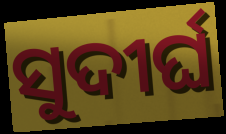
ସୁଦୀର୍ଘ